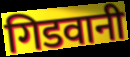
गिडवानी